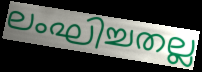
ലംഘിച്ചതല്ല